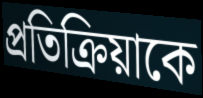
প্রতিক্রিয়াকে